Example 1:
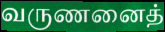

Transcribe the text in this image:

வருணனைத்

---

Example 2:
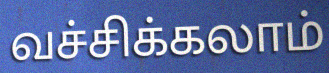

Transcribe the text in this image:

வச்சிக்கலாம்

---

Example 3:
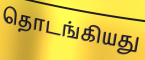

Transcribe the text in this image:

தொடங்கியது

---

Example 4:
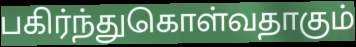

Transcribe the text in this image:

பகிர்ந்துகொள்வதாகும்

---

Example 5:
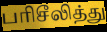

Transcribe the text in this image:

பரிசீலித்து